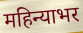
महिन्याभर